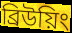
ব্রিউয়িং